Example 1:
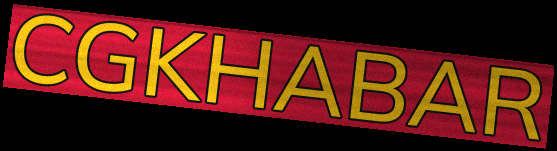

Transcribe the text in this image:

CGKHABAR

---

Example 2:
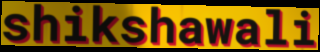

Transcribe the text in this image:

shikshawali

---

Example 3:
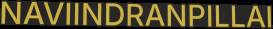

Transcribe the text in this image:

NAVIINDRANPILLAI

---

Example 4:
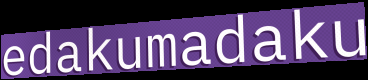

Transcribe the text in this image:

edakumadaku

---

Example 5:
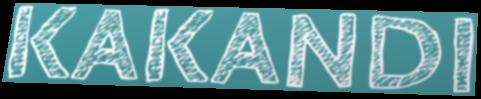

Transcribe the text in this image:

KAKANDI